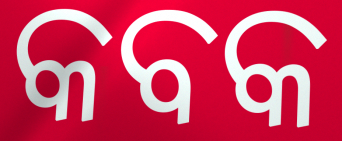
କବକ